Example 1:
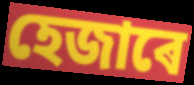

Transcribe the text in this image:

হেজাৰে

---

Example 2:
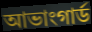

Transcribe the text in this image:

আভাংগাৰ্ড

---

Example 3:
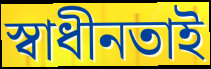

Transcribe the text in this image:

স্বাধীনতাই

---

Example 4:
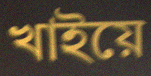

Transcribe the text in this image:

খাইয়ে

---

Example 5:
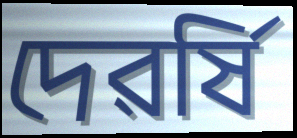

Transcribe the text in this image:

দেৱৰ্ষি